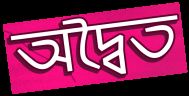
অদ্বৈত